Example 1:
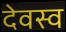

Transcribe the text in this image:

देवस्व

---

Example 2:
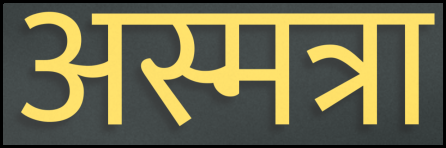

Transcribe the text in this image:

अस्मत्रा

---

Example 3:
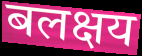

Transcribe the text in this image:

बलक्षय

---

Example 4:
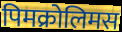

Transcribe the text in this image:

पिमक्रोलिमस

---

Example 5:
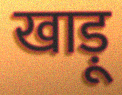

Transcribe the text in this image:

खाड़ू